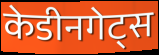
केडीनगेट्स